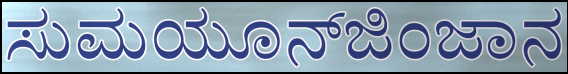
ಸುಮಯೂನ್‍ಜಿಂಜಾನ